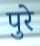
पुरे